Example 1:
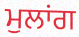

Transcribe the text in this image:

ਮੁਲਾਂਗ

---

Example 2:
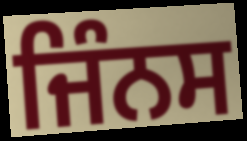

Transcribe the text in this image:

ਜਿੰਨਸ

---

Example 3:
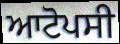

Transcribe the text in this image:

ਆਟੋਪਸੀ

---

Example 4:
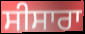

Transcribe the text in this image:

ਸੀਸਾਰਾ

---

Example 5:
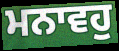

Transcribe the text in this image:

ਮਨਾਵਹੁ